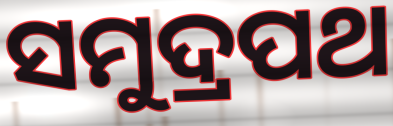
ସମୁଦ୍ରପଥ